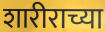
शारीराच्या